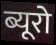
ब्‍यूरो